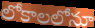
లోకాలలోనూ